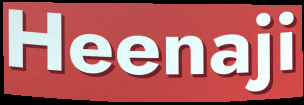
Heenaji